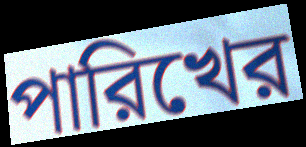
পারিখের